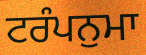
ਟਰੰਪਨੁਮਾ